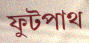
ফুটপাথ